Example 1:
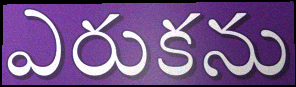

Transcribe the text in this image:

ఎరుకను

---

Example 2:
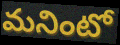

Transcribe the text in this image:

మనింటో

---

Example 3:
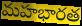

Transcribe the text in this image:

మహభారత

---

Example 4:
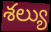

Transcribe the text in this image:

శల్యు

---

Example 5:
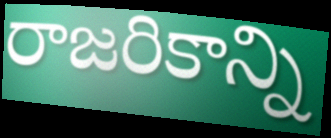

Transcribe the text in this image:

రాజరికాన్ని